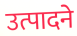
उत्पादने